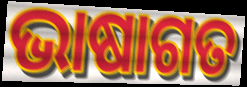
ଭାଷାଗତ